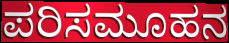
ಪರಿಸಮೂಹನ